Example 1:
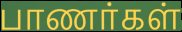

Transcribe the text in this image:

பாணர்கள்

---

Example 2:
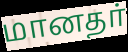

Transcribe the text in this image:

மானதர்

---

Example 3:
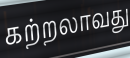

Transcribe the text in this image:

கற்றலாவது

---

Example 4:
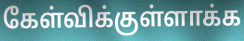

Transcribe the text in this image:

கேள்விக்குள்ளாக்க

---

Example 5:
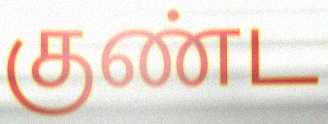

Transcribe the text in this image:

குண்ட